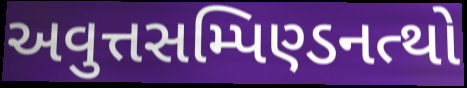
અવુત્તસમ્પિણ્ડનત્થો